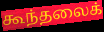
கூந்தலைக்